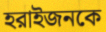
হরাইজনকে